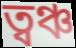
ত্বঞ্চ